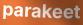
parakeet